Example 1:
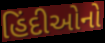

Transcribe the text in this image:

હિંદીઓનો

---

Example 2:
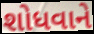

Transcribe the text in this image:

શોધવાને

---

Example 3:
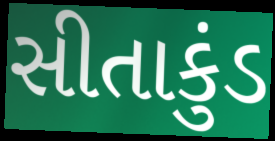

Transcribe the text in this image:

સીતાકુંડ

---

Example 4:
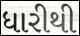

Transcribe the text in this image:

ધારીથી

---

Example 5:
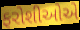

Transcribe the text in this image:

ફરોશીઓએ